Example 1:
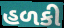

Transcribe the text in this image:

હળકી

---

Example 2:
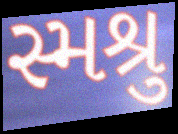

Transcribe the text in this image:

સ્મશ્રુ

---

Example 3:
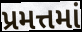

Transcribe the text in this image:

પ્રમત્તમાં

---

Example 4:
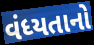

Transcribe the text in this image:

વંધ્યતાનો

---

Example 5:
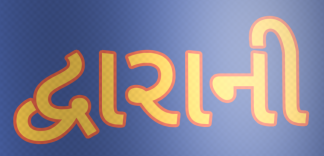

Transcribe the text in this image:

દ્વારાની